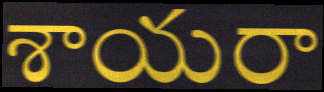
శాయరా